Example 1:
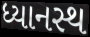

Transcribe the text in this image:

ધ્યાનસ્થ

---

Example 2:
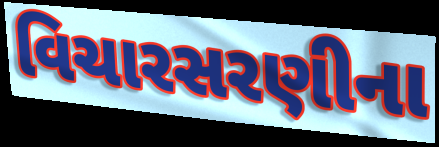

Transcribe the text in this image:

વિચારસરણીના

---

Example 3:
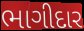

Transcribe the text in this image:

ભાગીદાર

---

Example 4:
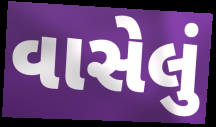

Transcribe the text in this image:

વાસેલું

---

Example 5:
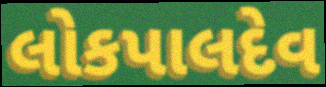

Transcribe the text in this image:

લોકપાલદેવ